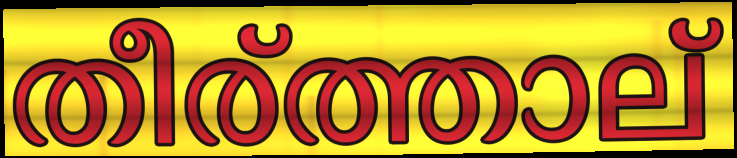
തീര്ത്താല്